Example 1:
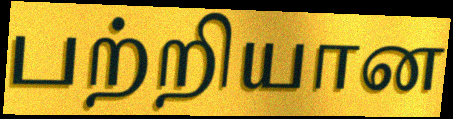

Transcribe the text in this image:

பற்றியான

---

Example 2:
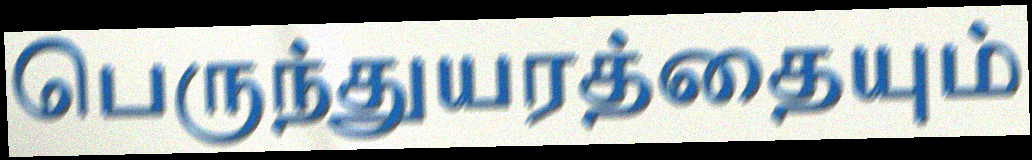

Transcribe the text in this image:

பெருந்துயரத்தையும்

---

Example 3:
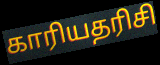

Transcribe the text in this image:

காரியதரிசி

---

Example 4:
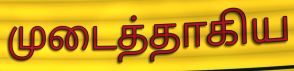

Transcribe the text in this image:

முடைத்தாகிய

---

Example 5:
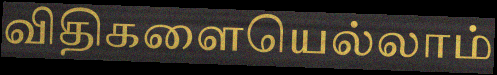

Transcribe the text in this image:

விதிகளையெல்லாம்